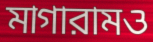
মাগারামও